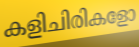
കളിചിരികളോ